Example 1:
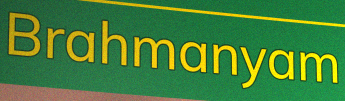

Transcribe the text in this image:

Brahmanyam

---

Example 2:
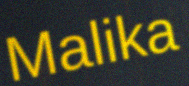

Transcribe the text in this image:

Malika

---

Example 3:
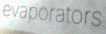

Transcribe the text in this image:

evaporators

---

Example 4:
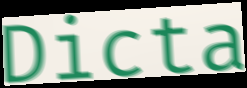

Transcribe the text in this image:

Dicta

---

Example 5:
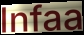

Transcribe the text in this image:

Infaa